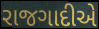
રાજગાદીએ